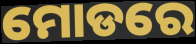
ମୋଡରେ